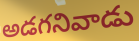
అడగనివాడు